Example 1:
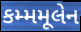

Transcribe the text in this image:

કમ્મમૂલેન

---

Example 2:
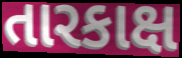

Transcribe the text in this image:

તારકાક્ષ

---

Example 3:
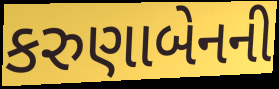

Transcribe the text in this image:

કરુણાબેનની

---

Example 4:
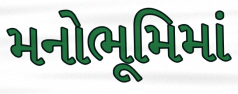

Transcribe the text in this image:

મનોભૂમિમાં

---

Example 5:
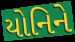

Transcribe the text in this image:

યોનિને